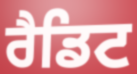
ਰੈਡਿਟ